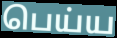
பெய்ய